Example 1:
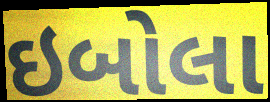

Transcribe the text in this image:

ઇબોલા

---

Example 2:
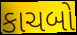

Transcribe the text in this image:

કાચબો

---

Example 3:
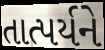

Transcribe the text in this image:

તાત્પર્યને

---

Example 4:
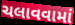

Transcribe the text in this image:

ચલાવવામાં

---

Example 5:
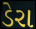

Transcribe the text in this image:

ડેરા